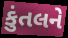
કુંતલને